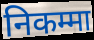
निकम्मा